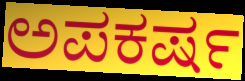
ಅಪಕರ್ಷ